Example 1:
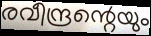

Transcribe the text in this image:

രവീന്ദ്രന്റെയും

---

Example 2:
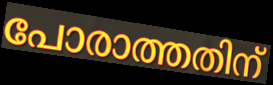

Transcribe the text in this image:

പോരാത്തതിന്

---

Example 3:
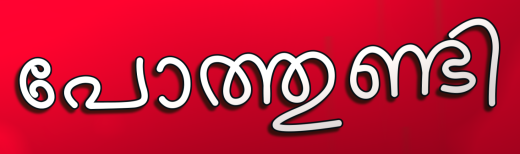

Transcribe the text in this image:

പോത്തുണ്ടി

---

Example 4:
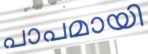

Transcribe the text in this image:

പാപമായി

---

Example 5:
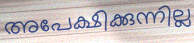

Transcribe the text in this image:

അപേക്ഷിക്കുന്നില്ല